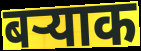
बऱ्याक